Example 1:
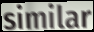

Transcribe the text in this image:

similar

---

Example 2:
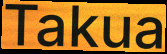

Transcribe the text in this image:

Takua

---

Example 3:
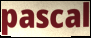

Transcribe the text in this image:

pascal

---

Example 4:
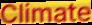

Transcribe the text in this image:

Climate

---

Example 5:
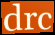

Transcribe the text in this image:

drc